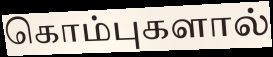
கொம்புகளால்